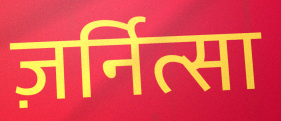
ज़र्नित्सा